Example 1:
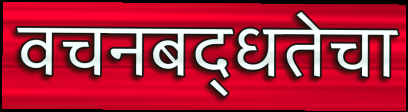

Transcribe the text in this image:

वचनबद्धतेचा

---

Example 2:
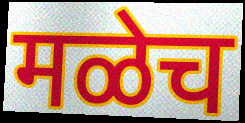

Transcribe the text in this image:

मळेच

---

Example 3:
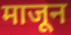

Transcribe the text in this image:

माजून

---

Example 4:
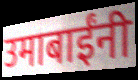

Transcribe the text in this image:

उमाबाईंनी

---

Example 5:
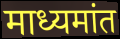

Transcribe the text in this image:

माध्यमांत